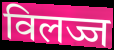
विलज्ज